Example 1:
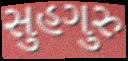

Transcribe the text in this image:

સુહગુરુ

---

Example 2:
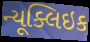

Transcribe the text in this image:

ન્યૂક્લિઇક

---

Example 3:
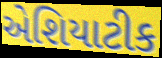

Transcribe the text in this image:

એશિયાટીક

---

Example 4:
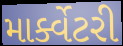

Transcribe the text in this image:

માર્ક્વેટરી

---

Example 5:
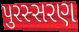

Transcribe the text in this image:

પુરસ્સરણ